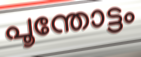
പൂന്തോട്ടം